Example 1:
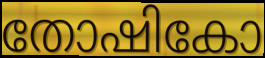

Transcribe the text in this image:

തോഷികോ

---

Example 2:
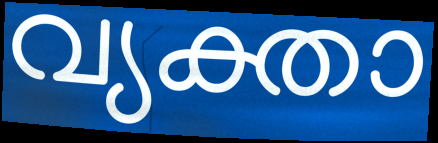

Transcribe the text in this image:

വ്യക്താ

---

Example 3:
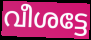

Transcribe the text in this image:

വീശട്ടേ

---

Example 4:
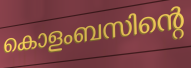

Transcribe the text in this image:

കൊളംബസിന്റെ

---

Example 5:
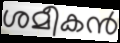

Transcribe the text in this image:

ശമീകൻ